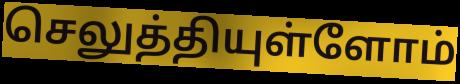
செலுத்தியுள்ளோம்